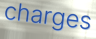
charges